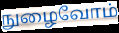
நுழைவோம்